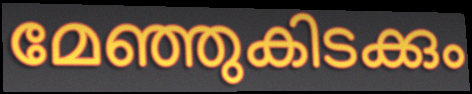
മേഞ്ഞുകിടക്കും